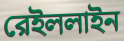
রেইললাইন